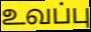
உவப்பு